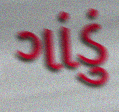
ગાંડું